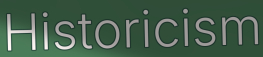
Historicism